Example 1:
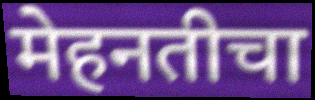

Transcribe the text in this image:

मेहनतीचा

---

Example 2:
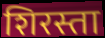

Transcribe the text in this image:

शिरस्ता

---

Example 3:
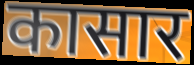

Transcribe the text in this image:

कासार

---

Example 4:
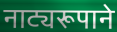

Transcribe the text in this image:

नाट्यरूपाने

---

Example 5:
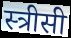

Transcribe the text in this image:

स्त्रीसी